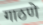
गाठणे